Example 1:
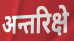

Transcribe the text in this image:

अन्तरिक्षे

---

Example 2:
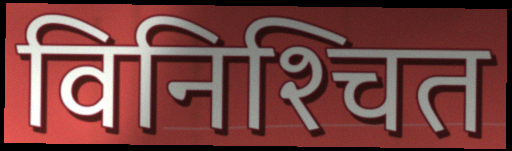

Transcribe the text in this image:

विनिश्चित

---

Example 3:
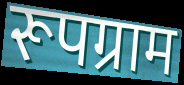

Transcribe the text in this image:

रूपग्राम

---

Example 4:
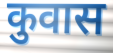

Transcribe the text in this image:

कुवास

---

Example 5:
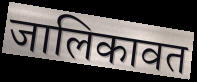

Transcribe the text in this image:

जालिकावत